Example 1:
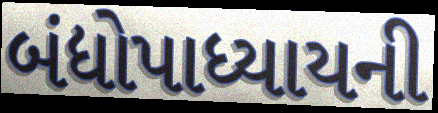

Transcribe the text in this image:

બંદ્યોપાધ્યાયની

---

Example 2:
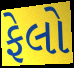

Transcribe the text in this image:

ફેલો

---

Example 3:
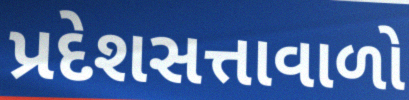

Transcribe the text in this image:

પ્રદેશસત્તાવાળો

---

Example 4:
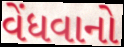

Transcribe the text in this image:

વેંધવાનો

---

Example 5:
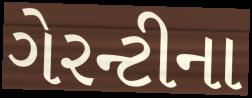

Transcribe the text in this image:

ગેરન્ટીના